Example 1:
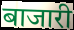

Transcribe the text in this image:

बाजारी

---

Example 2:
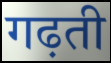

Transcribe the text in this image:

गढ़ती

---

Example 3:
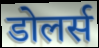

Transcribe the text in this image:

डोलर्स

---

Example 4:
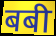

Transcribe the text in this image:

बबी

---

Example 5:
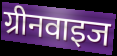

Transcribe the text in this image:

ग्रीनवाइज